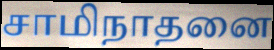
சாமிநாதனை